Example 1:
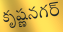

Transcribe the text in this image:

కృష్ణనగర్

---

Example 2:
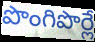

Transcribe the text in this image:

పొంగిపొర్లే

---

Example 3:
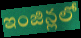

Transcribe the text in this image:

ఇంజిన్లలో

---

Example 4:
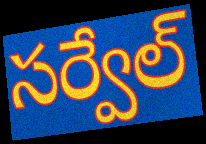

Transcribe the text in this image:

సర్వేల్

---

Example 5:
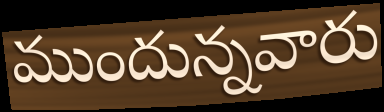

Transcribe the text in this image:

ముందున్నవారు